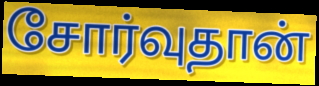
சோர்வுதான்